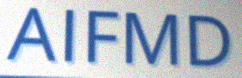
AIFMD